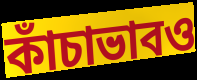
কাঁচাভাবও